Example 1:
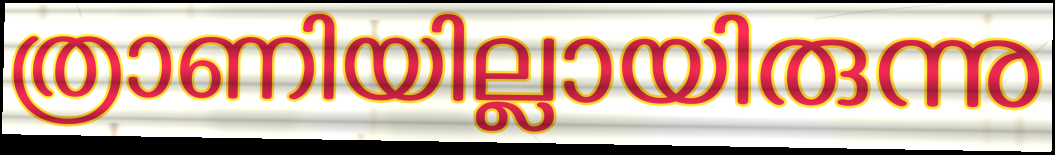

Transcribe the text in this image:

ത്രാണിയില്ലായിരുന്നു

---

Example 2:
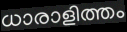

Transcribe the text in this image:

ധാരാളിത്തം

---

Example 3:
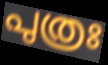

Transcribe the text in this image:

പുത്രഃ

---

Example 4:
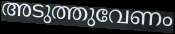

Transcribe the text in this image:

അടുത്തുവേണം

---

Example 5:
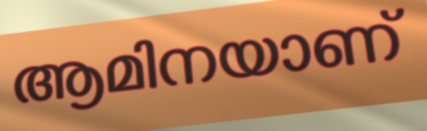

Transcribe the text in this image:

ആമിനയാണ്